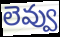
లెవ్వు